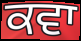
ਕਵਾ